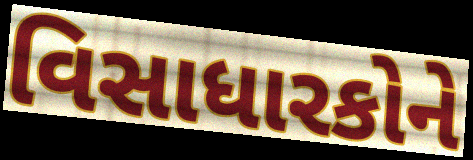
વિસાધારકોને